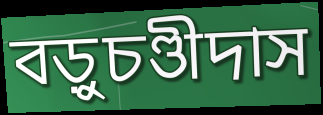
বড়ুচণ্ডীদাস